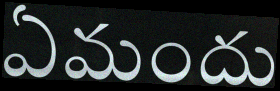
ఏమందు